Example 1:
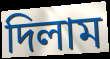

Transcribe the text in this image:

দিলাম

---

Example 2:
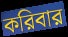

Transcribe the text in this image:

করিবার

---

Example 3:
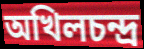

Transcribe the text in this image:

অখিলচন্দ্র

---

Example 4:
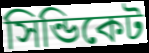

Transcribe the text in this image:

সিন্ডিকেট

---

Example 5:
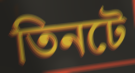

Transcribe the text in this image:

তিনটে